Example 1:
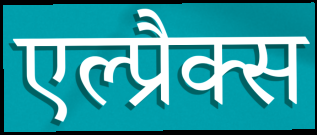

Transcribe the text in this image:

एल्प्रैक्स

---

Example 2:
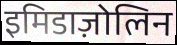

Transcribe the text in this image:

इमिडाज़ोलिन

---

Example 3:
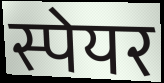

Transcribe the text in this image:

स्पेयर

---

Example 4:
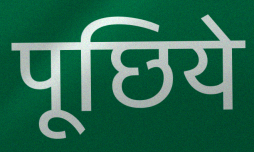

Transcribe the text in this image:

पूछिये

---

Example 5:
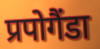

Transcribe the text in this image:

प्रपोगैंडा